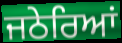
ਜਠੇਰਿਆਂ